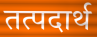
तत्पदार्थ